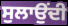
ਸੁਲਾਉਂਦੀ